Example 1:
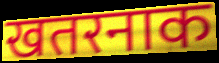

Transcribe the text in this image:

खतरनाक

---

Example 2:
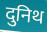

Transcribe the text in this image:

दुनिथ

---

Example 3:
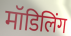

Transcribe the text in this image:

मॉडिलिंग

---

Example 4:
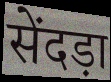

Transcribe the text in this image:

सेंदड़ा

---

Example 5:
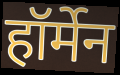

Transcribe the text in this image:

हॉर्मेन